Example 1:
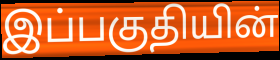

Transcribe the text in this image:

இப்பகுதியின்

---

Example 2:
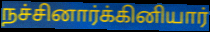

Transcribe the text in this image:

நச்சினார்க்கினியார்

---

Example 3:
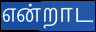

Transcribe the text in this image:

என்றாட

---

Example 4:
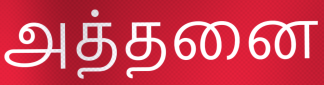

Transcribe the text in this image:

அத்தனை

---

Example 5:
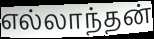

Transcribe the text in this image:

எல்லாந்தன்